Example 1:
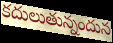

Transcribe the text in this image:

కదులుతున్నందున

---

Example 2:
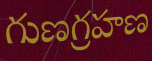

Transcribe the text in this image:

గుణగ్రహణ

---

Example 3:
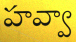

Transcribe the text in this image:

హవ్వా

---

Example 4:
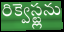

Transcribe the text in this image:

రిక్వెస్ట్లను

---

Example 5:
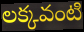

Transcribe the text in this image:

లక్కవంటి